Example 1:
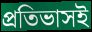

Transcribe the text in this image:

প্রতিভাসই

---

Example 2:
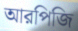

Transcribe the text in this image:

আরপিজি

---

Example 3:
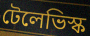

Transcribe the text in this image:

টেলেভিস্ক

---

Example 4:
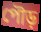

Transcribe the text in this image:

পৌড়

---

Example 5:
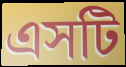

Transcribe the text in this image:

এসটি